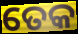
ତେକ